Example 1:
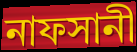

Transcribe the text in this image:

নাফসানী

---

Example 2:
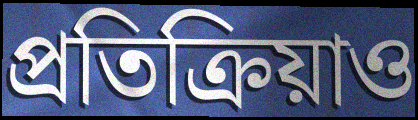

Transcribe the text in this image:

প্রতিক্রিয়াও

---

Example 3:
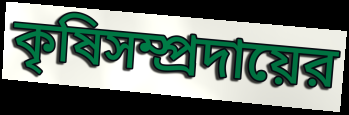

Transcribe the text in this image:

কৃষিসম্প্রদায়ের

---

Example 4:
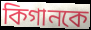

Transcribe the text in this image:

কিগানকে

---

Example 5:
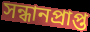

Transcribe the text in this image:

সন্ধানপ্রাপ্ত